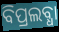
ବିପ୍ରଲବ୍ଧା